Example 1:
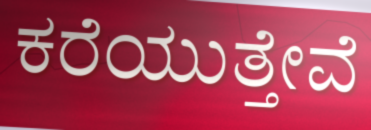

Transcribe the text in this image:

ಕರೆಯುತ್ತೇವೆ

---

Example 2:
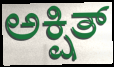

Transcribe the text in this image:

ಅಕ್ಷಿತ್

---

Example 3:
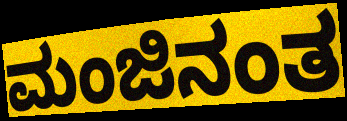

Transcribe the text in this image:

ಮಂಜಿನಂತ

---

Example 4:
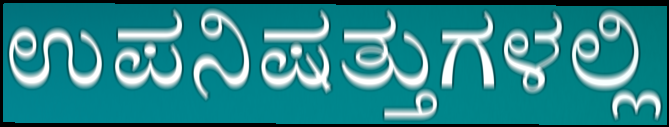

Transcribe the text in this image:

ಉಪನಿಷತ್ತುಗಳಲ್ಲಿ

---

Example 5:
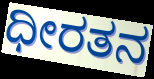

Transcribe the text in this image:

ಧೀರತನ